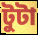
টুটা